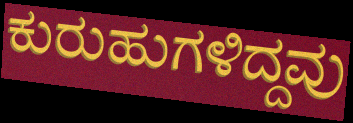
ಕುರುಹುಗಳಿದ್ದವು